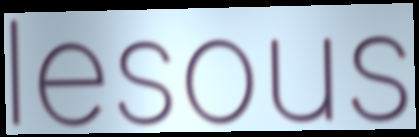
Iesous